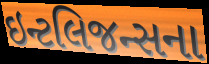
ઇન્ટલિજન્સના